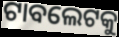
ଟାବଲେଟକୁ